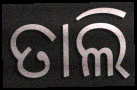
ତାଲି